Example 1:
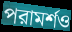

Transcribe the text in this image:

পরামর্শও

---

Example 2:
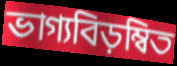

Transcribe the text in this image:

ভাগ্যবিড়ম্বিত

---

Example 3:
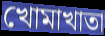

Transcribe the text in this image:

খোমাখাতা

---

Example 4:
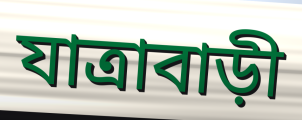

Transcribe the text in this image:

যাত্রাবাড়ী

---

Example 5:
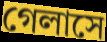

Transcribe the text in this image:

গেলাসে